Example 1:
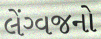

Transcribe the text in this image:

લેંગ્વજનો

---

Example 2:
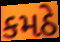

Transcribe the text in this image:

કમઠે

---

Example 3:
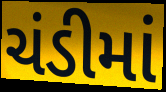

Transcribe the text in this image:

ચંડીમાં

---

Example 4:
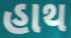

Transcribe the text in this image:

હાથ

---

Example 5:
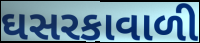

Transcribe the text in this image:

ઘસરકાવાળી